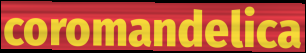
coromandelica